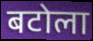
बटोला